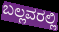
ಬಲ್ಲವರಲ್ಲಿ